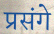
प्रसंगे